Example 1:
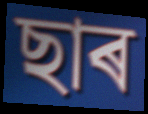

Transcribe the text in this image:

ছাৰ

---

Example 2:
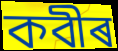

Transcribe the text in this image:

কবীৰ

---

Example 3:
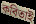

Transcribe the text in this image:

কবিতাই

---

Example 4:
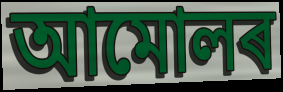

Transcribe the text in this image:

আমোলৰ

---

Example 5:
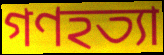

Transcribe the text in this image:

গণহত্যা